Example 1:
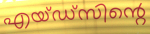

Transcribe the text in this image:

എയ്ഡ്സിന്റെ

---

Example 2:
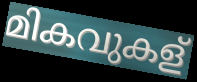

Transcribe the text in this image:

മികവുകള്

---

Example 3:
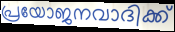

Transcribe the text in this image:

പ്രയോജനവാദിക്ക്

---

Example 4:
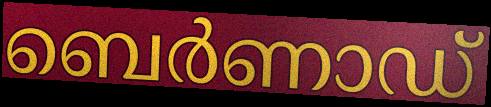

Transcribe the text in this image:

ബെർണാഡ്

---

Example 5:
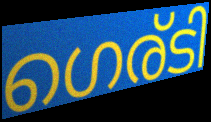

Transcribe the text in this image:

ഗെര്ടി